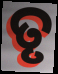
ତୃ